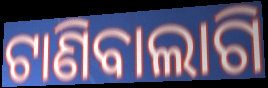
ଟାଣିବାଲାଗି